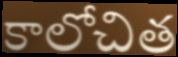
కాలోచిత